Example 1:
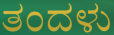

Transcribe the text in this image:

ತಂದಳು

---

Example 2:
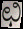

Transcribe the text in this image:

ಛಿ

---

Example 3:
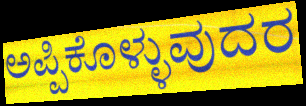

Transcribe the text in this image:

ಅಪ್ಪಿಕೊಳ್ಳುವುದರ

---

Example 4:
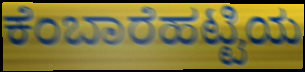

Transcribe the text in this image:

ಕೆಂಬಾರೆಹಟ್ಟಿಯ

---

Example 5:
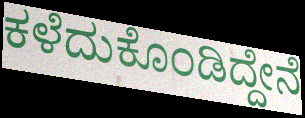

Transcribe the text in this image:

ಕಳೆದುಕೊಂಡಿದ್ದೇನೆ